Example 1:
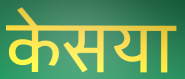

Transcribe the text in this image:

केसया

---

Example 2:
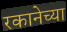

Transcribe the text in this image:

रकानेच्या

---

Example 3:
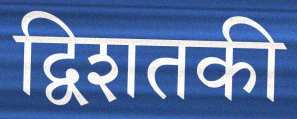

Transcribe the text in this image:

द्विशतकी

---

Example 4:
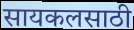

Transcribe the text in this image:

सायकलसाठी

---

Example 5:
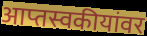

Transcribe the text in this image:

आप्तस्वकीयांवर